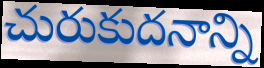
చురుకుదనాన్ని